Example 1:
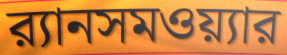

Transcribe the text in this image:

র‍্যানসমওয়্যার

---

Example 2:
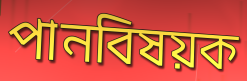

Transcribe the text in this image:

পানবিষয়ক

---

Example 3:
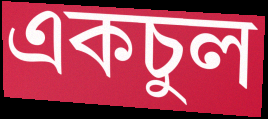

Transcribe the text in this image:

একচুল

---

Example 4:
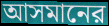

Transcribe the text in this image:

আসমানের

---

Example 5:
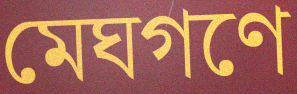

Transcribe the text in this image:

মেঘগণে